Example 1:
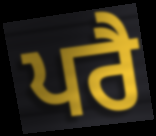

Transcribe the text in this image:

ਪਰੈ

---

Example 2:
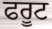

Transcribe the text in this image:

ਫਰੂਟ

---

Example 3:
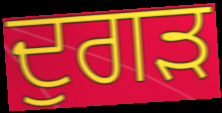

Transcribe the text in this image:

ਦੁਗੜ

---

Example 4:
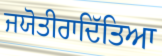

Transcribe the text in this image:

ਜਯੋਤੀਰਾਦਿੱਤਿਆ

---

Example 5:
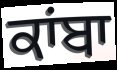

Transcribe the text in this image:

ਕਾਂਬਾ